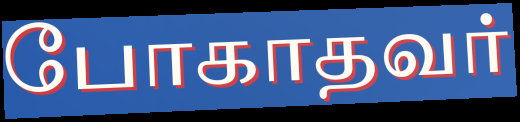
போகாதவர்